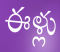
ఈళ్లు